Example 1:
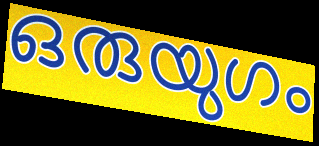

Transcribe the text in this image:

ഒരുയുഗം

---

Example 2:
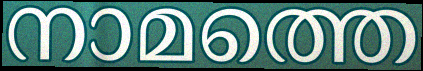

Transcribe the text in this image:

നാമത്തെ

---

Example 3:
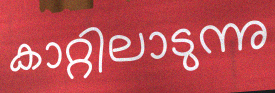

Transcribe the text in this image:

കാറ്റിലാടുന്നു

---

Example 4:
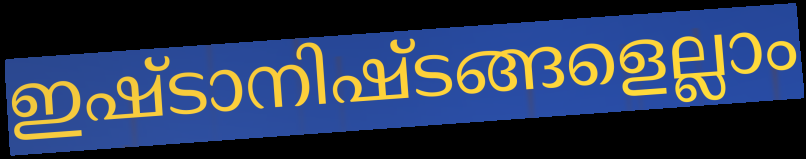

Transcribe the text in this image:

ഇഷ്ടാനിഷ്ടങ്ങളെല്ലാം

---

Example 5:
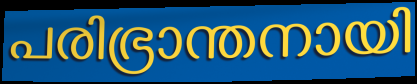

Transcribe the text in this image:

പരിഭ്രാന്തനായി